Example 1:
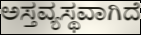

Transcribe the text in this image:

ಅಸ್ತವ್ಯಸ್ಥವಾಗಿದೆ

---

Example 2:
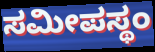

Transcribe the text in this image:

ಸಮೀಪಸ್ಥಂ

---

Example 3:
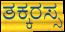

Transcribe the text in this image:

ತಕ್ಕರಸ್ಸ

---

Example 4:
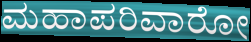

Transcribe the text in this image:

ಮಹಾಪರಿವಾರೋ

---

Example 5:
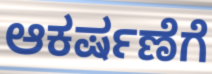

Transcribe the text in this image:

ಆಕರ್ಷಣೆಗೆ